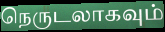
நெருடலாகவும்